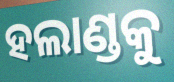
ହଲାଣ୍ଡକୁ